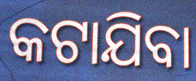
କଟାଯିବା